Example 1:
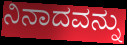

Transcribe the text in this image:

ನಿನಾದವನ್ನು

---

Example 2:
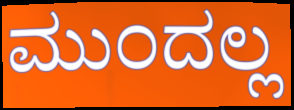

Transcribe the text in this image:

ಮುಂದಲ್ಲ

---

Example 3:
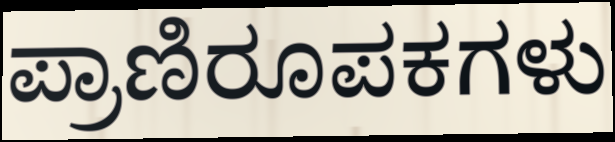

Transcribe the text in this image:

ಪ್ರಾಣಿರೂಪಕಗಳು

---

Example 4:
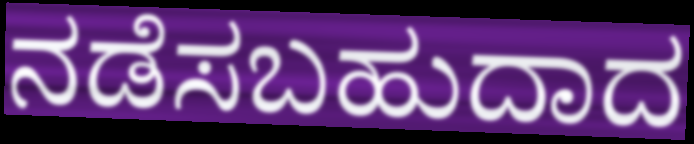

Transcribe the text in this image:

ನಡೆಸಬಹುದಾದ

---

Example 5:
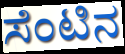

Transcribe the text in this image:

ಸೆಂಟಿನ